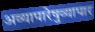
अव्यापारेषुव्यापार